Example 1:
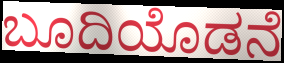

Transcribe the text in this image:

ಬೂದಿಯೊಡನೆ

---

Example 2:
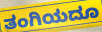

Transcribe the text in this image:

ತಂಗಿಯದೂ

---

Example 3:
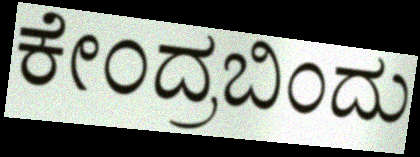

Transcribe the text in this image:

ಕೇಂದ್ರಬಿಂದು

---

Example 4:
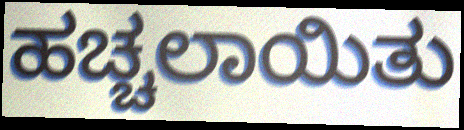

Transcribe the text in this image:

ಹಚ್ಚಲಾಯಿತು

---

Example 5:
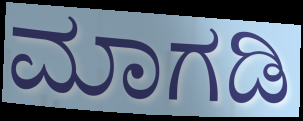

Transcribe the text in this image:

ಮಾಗಡಿ